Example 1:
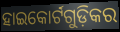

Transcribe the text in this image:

ହାଇକୋର୍ଟଗୁଡ଼ିକର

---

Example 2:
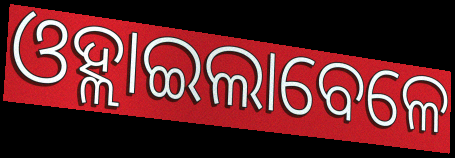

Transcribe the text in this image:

ଓହ୍ଲାଇଲାବେଳେ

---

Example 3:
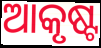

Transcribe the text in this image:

ଆକୃଷ୍ଟ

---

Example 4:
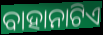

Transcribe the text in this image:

ବାହାନାଟିଏ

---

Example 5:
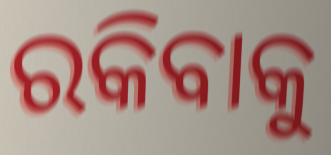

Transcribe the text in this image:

ରକିବାକୁ